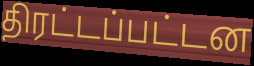
திரட்டப்பட்டன